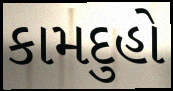
કામદુહો